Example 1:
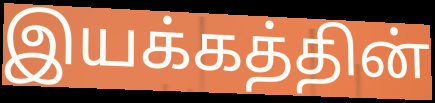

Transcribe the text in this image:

இயக்கத்தின்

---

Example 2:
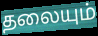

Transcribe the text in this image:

தலையும்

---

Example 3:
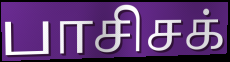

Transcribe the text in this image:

பாசிசக்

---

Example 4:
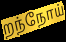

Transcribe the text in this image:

றந்நோய்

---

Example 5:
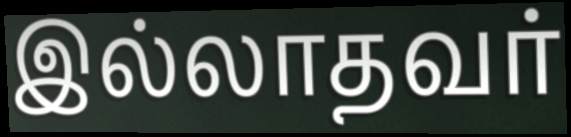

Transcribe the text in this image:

இல்லாதவர்